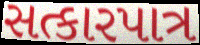
સત્કારપાત્ર